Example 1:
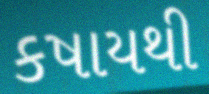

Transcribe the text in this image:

કષાયથી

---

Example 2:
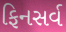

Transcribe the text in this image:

ફિનસર્વ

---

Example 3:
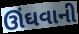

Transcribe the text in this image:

ઊંઘવાની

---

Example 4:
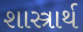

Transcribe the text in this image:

શાસ્ત્રાર્થ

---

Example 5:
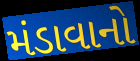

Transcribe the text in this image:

મંડાવાનો